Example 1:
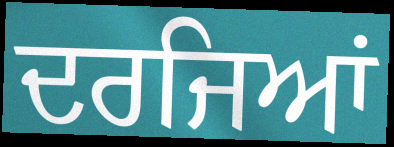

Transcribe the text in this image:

ਦਰਜਿਆਂ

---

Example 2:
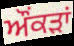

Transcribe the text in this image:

ਔਂਕੜਾਂ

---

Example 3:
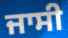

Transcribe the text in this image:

ਜਾਸੀ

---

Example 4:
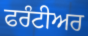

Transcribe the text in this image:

ਫਰੰਟੀਅਰ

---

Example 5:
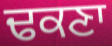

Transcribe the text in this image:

ਢਕਣਾ